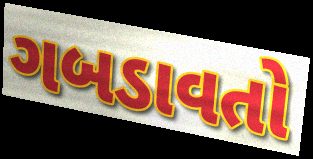
ગબડાવતો